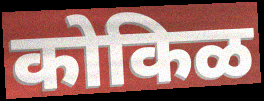
कोकिळ